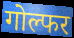
गोल्फर